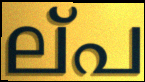
ല്‌പ